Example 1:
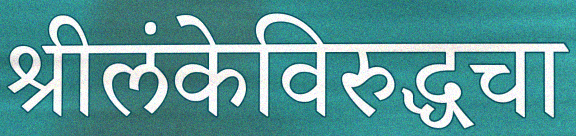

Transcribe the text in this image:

श्रीलंकेविरुद्धचा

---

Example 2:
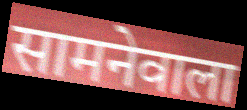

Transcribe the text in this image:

सामनेवाला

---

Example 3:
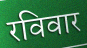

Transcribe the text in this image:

रविवार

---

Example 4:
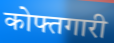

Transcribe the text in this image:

कोफ्तगारी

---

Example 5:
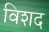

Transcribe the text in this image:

विशद